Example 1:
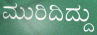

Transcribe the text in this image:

ಮುರಿದಿದ್ದು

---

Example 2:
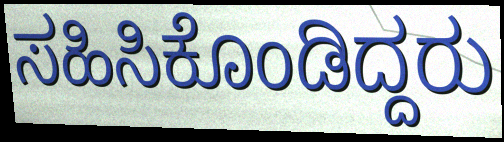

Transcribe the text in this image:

ಸಹಿಸಿಕೊಂಡಿದ್ದರು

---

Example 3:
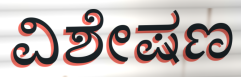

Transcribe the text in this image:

ವಿಶೇಷಣ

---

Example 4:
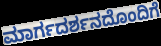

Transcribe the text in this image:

ಮಾರ್ಗದರ್ಶನದೊಂದಿಗೆ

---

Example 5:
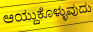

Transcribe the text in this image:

ಆಯ್ದುಕೊಳ್ಳುವುದು